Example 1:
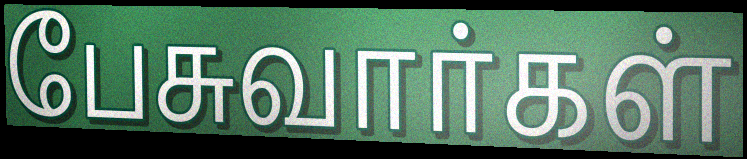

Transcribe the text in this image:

பேசுவார்கள்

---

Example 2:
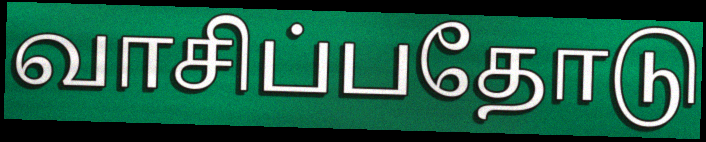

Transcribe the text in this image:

வாசிப்பதோடு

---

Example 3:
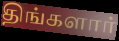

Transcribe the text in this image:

திங்களார்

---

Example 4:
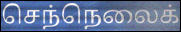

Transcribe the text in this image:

செந்நெலைக்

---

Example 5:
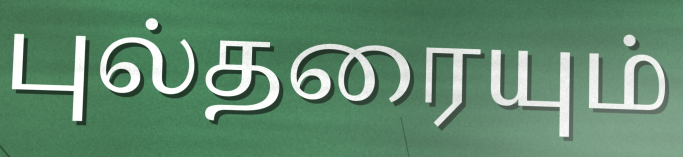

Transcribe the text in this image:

புல்தரையும்